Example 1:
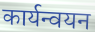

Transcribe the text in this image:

कार्यन्वयन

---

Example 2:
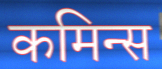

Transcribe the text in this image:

कमिन्स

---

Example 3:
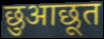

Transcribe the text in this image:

छुआछूत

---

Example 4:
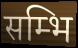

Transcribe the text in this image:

सम्भि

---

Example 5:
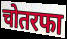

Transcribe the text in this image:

चोतरफा